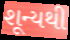
શૂન્યથી